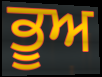
ਭੂਅ